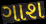
ગાશ